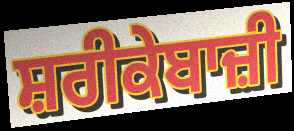
ਸ਼ਰੀਕੇਬਾਜ਼ੀ